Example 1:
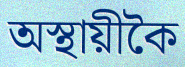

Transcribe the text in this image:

অস্থায়ীকৈ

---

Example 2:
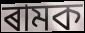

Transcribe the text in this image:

ৰামক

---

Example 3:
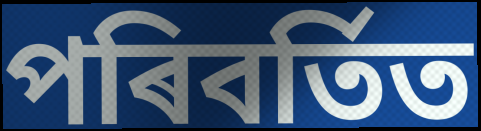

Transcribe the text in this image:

পৰিবৰ্তিত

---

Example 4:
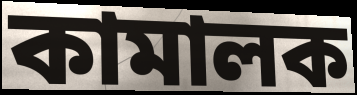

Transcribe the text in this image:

কামালক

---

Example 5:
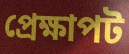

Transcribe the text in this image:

প্ৰেক্ষাপট